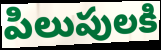
పిలుపులకి